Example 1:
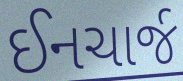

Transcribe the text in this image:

ઈનચાર્જ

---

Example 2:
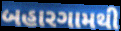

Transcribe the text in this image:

બહારગામથી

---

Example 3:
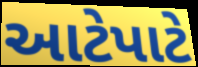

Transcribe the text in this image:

આટેપાટે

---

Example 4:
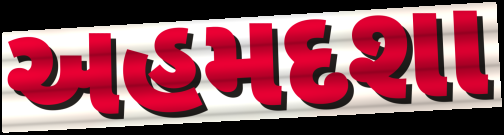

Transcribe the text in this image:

અહમદશા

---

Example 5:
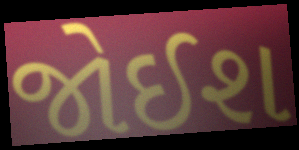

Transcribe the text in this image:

જોઈશ